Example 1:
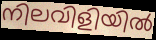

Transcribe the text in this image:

നിലവിളിയിൽ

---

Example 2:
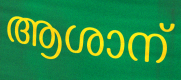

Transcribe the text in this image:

ആശാന്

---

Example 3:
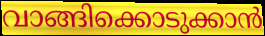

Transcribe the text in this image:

വാങ്ങിക്കൊടുക്കാൻ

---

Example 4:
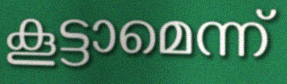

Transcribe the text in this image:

കൂട്ടാമെന്ന്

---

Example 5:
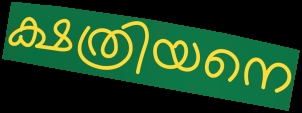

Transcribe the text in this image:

ക്ഷത്രിയനെ